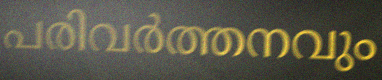
പരിവർത്തനവും